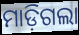
ମାଡ଼ିଗଲା